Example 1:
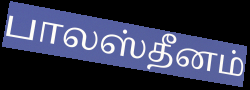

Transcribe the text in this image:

பாலஸ்தீனம்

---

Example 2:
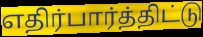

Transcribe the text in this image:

எதிர்பார்த்திட்டு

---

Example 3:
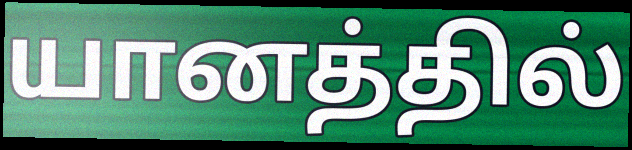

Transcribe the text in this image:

யானத்தில்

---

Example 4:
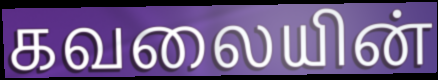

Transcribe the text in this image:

கவலையின்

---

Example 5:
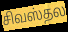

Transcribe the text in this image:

சிவஸ்தல